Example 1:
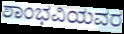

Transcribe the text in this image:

ಶಾಂಭವಿಯವರ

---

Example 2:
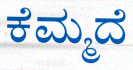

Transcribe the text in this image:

ಕೆಮ್ಮದೆ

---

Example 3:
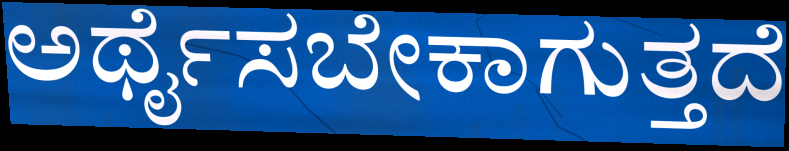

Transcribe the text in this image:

ಅರ್ಥೈಸಬೇಕಾಗುತ್ತದೆ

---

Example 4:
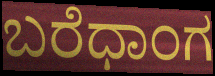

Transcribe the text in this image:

ಬರೆಧಾಂಗ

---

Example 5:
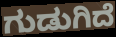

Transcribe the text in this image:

ಗುಡುಗಿದೆ